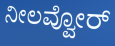
ನೀಲವ್ವೋರ್